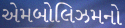
એમબોલિઝમનો